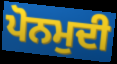
ਪੋਨਮੁਦੀ